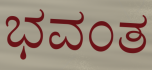
ಭವಂತ